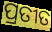
ପ୍ରତୀତ